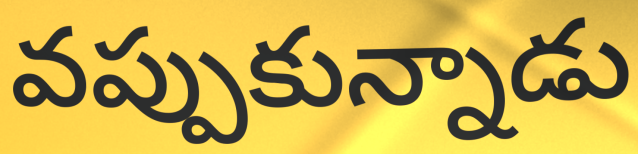
వప్పుకున్నాడు